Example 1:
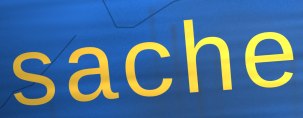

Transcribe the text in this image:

sache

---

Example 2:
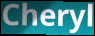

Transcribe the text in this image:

Cheryl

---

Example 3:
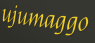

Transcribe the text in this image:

ujumaggo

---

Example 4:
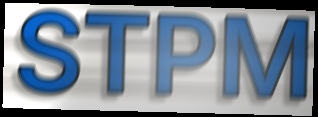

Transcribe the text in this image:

STPM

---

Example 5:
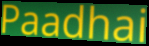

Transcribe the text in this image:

Paadhai